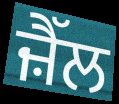
ਜ਼ੈੱਲ